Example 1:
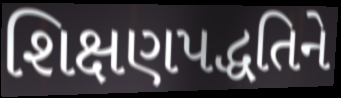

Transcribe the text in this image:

શિક્ષણપદ્ધતિને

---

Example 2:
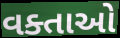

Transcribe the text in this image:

વક્તાઓ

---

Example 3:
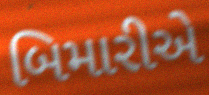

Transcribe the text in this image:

બિમારીએ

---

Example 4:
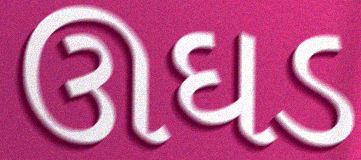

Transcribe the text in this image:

ઊઘડ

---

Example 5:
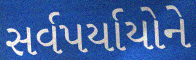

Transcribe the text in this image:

સર્વપર્યાયોને